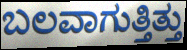
ಬಲವಾಗುತ್ತಿತ್ತು